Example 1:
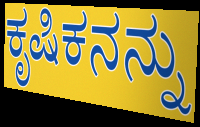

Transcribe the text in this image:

ಕೃಷಿಕನನ್ನು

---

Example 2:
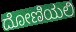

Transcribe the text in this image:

ದೋಣಿಯಲಿ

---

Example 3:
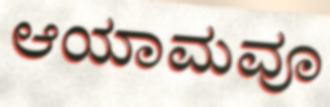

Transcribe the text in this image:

ಆಯಾಮವೂ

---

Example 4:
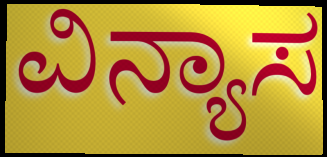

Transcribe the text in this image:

ವಿನ್ಯಾಸ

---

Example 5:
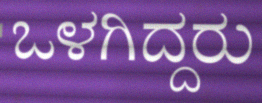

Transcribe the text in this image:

ಒಳಗಿದ್ದರು